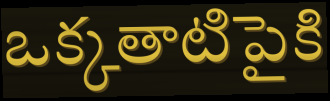
ఒక్కతాటిపైకి